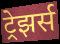
ट्रेझर्स